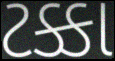
ટક્કા